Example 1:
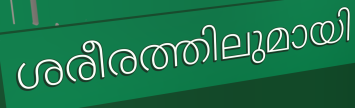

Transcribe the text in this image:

ശരീരത്തിലുമായി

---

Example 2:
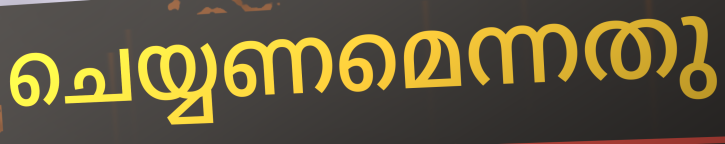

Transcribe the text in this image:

ചെയ്യണമെന്നതു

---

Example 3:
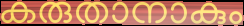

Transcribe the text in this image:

കരുതാനാകും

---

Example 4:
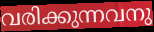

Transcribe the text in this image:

വരിക്കുന്നവനു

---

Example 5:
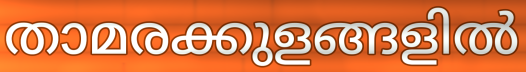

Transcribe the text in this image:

താമരക്കുളങ്ങളിൽ